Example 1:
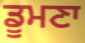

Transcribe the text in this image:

ਡੂਮਣਾ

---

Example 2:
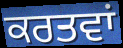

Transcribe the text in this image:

ਕਰਤਵਾਂ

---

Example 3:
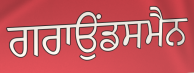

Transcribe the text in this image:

ਗਰਾਉਂਡਸਮੈਨ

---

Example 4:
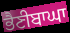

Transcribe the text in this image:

ਭੈਣੀਬਾਘਾ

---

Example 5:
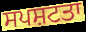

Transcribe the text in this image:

ਸਪਸ਼ਟਤਾ